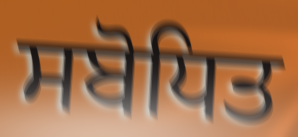
ਸਬੋਧਿਤ